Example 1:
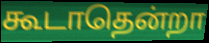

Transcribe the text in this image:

கூடாதென்றா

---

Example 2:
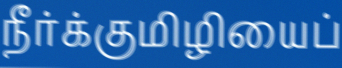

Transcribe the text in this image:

நீர்க்குமிழியைப்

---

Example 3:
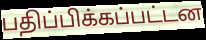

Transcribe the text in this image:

பதிப்பிக்கப்பட்டன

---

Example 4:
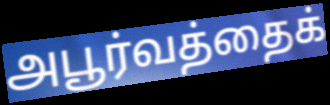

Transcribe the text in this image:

அபூர்வத்தைக்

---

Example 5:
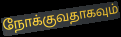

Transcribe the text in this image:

நோக்குவதாகவும்